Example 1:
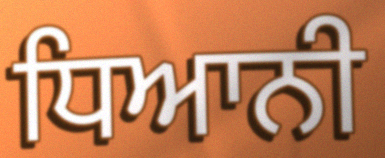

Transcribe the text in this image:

ਧਿਆਨੀ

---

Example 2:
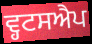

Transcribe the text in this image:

ਵ੍ਹਟਸਐਪ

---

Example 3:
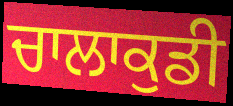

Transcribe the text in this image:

ਚਾਲਾਕੁਡੀ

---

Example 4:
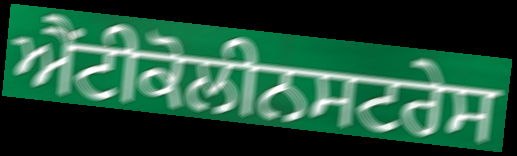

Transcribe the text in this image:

ਐਂਟੀਕੋਲੀਨਸਟਰੇਸ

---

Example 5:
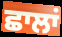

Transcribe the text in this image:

ਛਾਲਾਂ